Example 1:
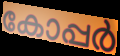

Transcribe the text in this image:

കോപ്പർ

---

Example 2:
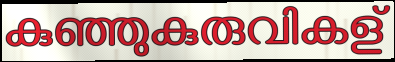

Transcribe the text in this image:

കുഞ്ഞുകുരുവികള്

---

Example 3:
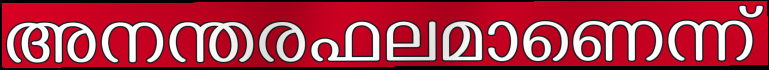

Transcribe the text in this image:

അനന്തരഫലമാണെന്ന്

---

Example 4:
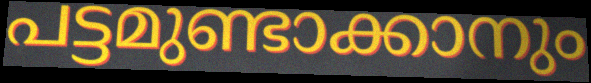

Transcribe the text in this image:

പട്ടമുണ്ടാക്കാനും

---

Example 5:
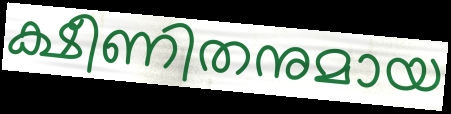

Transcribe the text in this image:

ക്ഷീണിതനുമായ